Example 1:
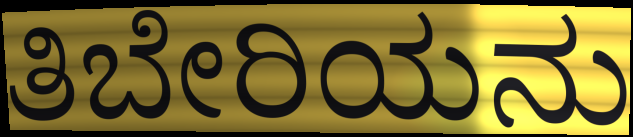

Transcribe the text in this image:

ತಿಬೇರಿಯನು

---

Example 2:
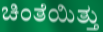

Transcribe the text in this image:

ಚಿಂತೆಯಿತ್ತು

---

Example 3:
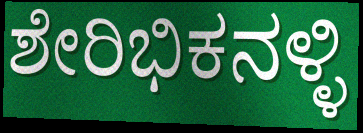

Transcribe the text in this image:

ಶೇರಿಭಿಕನಳ್ಳಿ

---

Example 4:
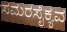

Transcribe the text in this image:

ಸಮರಸೈಕ್ಯವ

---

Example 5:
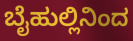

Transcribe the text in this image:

ಬೈಹುಲ್ಲಿನಿಂದ